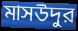
মাসউদুর